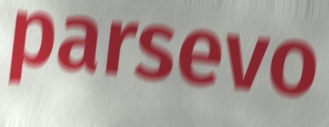
parsevo